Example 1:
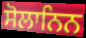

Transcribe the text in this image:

ਸੋਲਾਨਿਨ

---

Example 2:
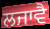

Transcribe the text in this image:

ਲਜਾਵੈ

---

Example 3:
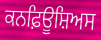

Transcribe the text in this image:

ਕਨਫ਼ਿਊਸ਼ਿਅਸ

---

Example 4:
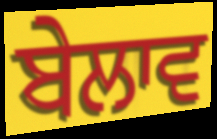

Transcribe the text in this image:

ਬੇਲਾਵ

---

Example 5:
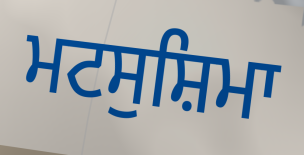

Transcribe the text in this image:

ਮਟਸੁਸ਼ਿਮਾ